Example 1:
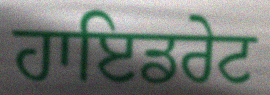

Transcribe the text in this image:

ਹਾਇਡਰੇਟ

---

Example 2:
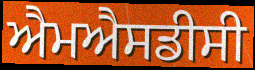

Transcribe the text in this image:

ਐਮਐਸਡੀਸੀ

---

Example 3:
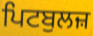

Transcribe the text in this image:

ਪਿਟਬੁਲਜ਼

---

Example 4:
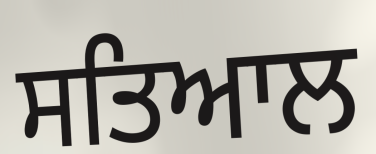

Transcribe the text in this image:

ਸਤਿਆਲ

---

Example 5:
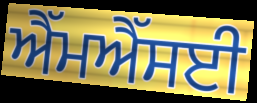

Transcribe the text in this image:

ਐੱਮਐੱਸਈ